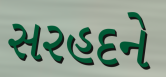
સરહદને